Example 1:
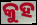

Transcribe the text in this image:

କୁହ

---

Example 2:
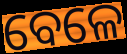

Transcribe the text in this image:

ବେଳେ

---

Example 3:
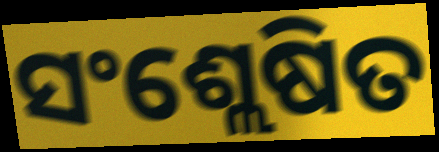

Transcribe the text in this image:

ସଂଶ୍ଲେଷିତ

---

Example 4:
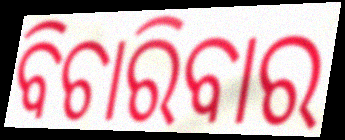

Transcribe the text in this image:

ବିଚାରିବାର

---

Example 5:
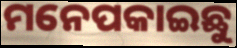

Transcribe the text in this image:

ମନେପକାଇଛୁ